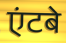
एंटबे